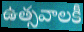
ఉత్సవాలకీ